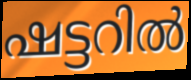
ഷട്ടറിൽ